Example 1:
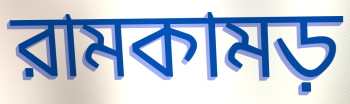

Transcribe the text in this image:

রামকামড়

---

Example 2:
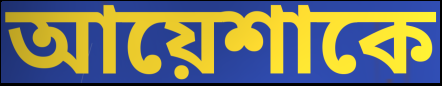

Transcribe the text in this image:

আয়েশাকে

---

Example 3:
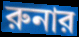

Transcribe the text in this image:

রুনার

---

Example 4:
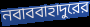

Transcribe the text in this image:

নবাববাহাদুরের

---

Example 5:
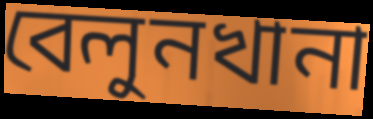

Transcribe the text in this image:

বেলুনখানা